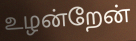
உழன்றேன்